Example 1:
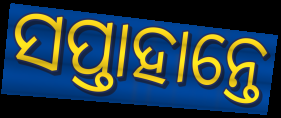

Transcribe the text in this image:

ସପ୍ତାହାନ୍ତେ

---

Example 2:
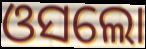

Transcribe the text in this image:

ଓସଲୋ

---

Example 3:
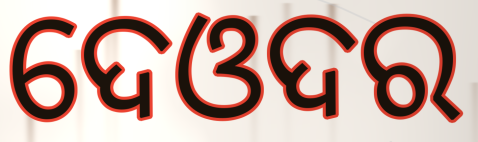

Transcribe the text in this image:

ଦେଓଦର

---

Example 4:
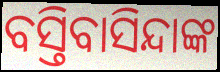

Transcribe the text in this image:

ବସ୍ତିବାସିନ୍ଦାଙ୍କ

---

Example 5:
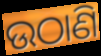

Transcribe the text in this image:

ଉଠାଣି